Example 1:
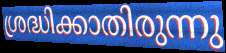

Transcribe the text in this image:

ശ്രദ്ധിക്കാതിരുന്നു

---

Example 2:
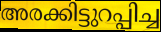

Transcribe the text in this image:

അരക്കിട്ടുറപ്പിച്ച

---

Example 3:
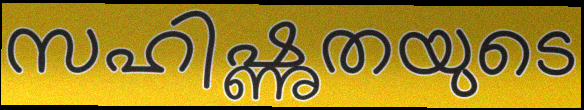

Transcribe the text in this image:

സഹിഷ്ണുതയുടെ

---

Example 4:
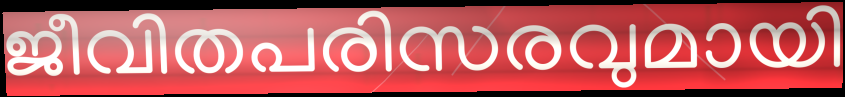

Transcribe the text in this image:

ജീവിതപരിസരവുമായി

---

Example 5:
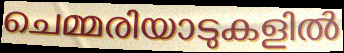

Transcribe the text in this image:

ചെമ്മരിയാടുകളിൽ